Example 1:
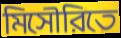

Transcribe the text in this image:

মিসৌরিতে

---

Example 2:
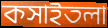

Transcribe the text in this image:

কসাইতলা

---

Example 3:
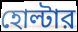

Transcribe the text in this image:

হোল্টার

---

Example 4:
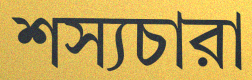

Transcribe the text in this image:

শস্যচারা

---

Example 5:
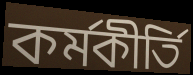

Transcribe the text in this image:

কর্মকীর্তি